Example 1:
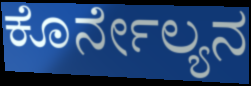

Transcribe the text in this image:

ಕೊರ್ನೇಲ್ಯನ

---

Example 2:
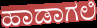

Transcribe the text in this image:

ಹಾಡಾಗಲಿ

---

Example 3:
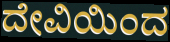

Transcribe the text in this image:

ದೇವಿಯಿಂದ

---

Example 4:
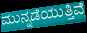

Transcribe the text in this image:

ಮುನ್ನಡೆಯುತ್ತಿವೆ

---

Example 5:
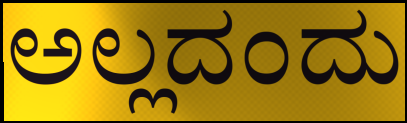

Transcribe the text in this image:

ಅಲ್ಲದಂದು